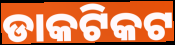
ଡାକଟିକଟ